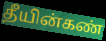
தீயின்கண்